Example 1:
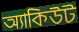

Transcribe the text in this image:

অ্যাকিউট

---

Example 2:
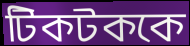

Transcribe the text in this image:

টিকটককে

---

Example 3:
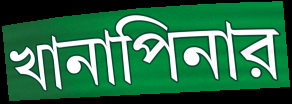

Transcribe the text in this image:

খানাপিনার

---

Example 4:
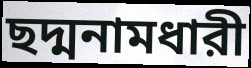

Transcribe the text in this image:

ছদ্মনামধারী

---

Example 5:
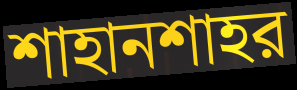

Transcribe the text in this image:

শাহানশাহর